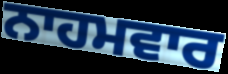
ਨਾਹਮਵਾਰ